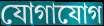
যোগাযোগ